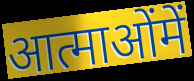
आत्माओंमें